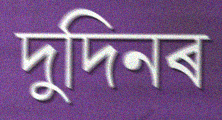
দুদিনৰ